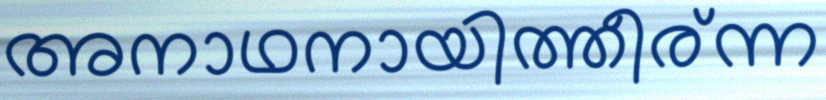
അനാഥനായിത്തീര്ന്ന